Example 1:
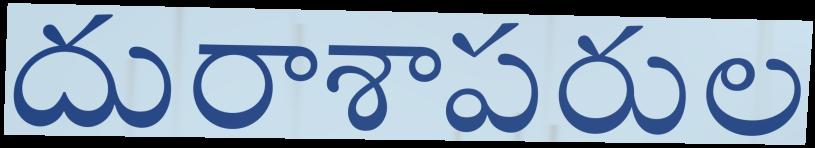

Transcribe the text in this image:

దురాశాపరుల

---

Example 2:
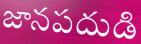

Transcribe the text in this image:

జానపదుడి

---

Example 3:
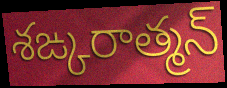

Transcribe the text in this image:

శఙ్కరాత్మన్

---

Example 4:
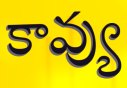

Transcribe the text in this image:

కావ్యు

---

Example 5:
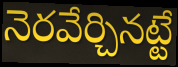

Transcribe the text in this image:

నెరవేర్చినట్టే